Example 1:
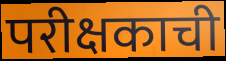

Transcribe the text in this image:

परीक्षकाची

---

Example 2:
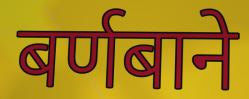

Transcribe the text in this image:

बर्णबाने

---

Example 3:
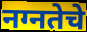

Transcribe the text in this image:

नग्नतेचे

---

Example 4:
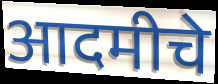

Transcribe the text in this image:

आदमीचे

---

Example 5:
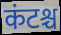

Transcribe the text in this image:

कंटश्च